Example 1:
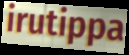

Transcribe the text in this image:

irutippa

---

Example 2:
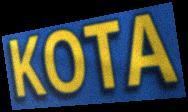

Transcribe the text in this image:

KOTA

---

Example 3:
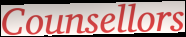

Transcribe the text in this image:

Counsellors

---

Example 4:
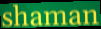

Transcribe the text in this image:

shaman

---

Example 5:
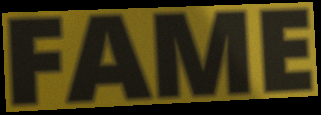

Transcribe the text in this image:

FAME